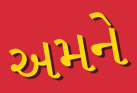
અમને